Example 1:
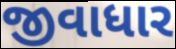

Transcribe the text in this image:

જીવાધાર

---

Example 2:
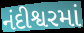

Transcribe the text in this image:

નંદીશ્વરમાં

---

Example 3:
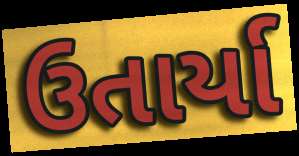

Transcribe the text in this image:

ઉતાર્યા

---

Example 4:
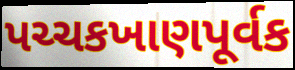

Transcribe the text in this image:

પચ્ચકખાણપૂર્વક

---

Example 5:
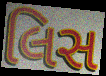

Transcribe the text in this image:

લિસ